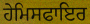
ਹੇਮਿਸਫਾਇਰ